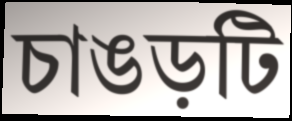
চাঙড়টি